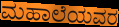
ಮಹಾಲೆಯವರ